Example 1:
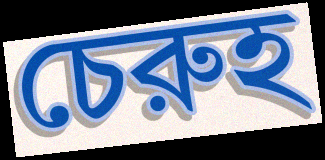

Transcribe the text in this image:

চেরুহ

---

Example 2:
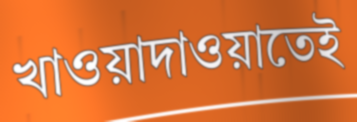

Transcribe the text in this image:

খাওয়াদাওয়াতেই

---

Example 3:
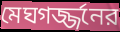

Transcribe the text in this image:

মেঘগর্জ্জনের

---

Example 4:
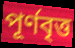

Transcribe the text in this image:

পূর্ণবৃত্ত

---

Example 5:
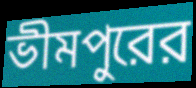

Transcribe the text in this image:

ভীমপুরের